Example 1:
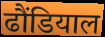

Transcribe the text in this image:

ढौंडियाल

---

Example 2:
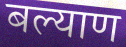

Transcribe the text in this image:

बल्याण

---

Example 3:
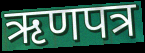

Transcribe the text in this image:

ऋणपत्र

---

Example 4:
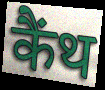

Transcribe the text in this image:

कैंथ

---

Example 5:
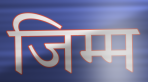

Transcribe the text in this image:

जिम्म